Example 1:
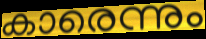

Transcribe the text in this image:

കാരെന്നും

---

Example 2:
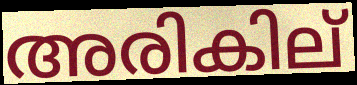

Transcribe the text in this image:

അരികില്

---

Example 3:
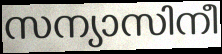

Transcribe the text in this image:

സന്യാസിനീ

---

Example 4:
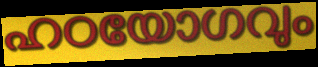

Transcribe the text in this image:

ഹഠയോഗവും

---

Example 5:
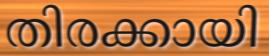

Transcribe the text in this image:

തിരക്കായി